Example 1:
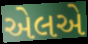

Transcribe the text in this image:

એલએ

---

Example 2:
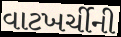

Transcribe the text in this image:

વાટખર્ચીની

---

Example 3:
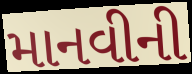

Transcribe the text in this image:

માનવીની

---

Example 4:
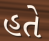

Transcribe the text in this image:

હતે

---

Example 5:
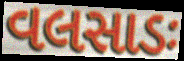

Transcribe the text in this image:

વલસાડઃ